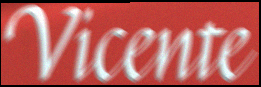
Vicente